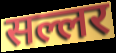
सल्लर